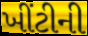
ખીંટીની